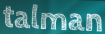
talman